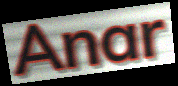
Anar